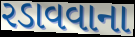
રડાવવાના